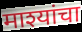
माश्यांचा